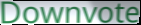
Downvote